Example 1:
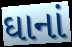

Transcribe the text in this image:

ઘાનાં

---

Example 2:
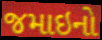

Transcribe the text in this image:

જમાઇનો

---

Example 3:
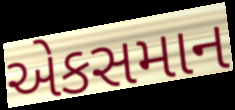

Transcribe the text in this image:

એકસમાન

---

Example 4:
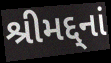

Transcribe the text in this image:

શ્રીમદ્દ્નાં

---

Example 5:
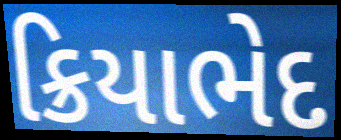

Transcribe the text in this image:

ક્રિયાભેદ